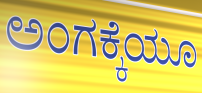
ಅಂಗಕ್ಕೆಯೂ